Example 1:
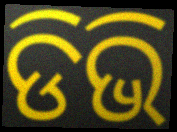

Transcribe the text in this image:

ଡିଭି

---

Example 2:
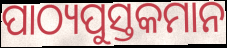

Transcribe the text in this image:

ପାଠ୍ୟପୁସ୍ତକମାନ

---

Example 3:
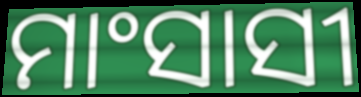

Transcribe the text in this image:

ମାଂସାସୀ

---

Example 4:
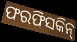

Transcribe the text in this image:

ଫରଫିସକିନ୍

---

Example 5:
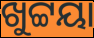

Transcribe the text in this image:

ଖୁଟ୍ଟୟା